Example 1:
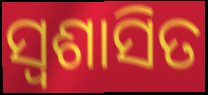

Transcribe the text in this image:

ସ୍ୱଶାସିତ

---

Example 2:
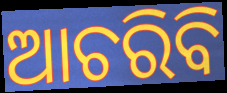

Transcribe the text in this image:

ଆଚରିବି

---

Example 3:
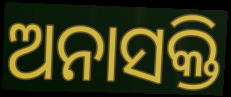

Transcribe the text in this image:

ଅନାସକ୍ତି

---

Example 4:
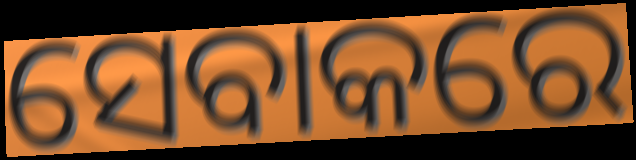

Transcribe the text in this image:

ସେବାକରେ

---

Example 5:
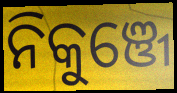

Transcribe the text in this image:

ନିକୁଞ୍ଜେ